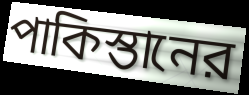
পাকিস্তানের